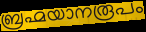
ബ്രഹ്മയാനരൂപം